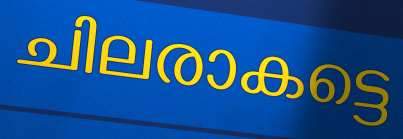
ചിലരാകട്ടെ